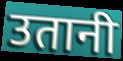
उतानी